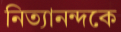
নিত্যানন্দকে